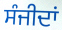
ਸੰਜੀਦਾਂ